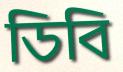
ডিবি